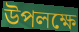
উপলক্ষে